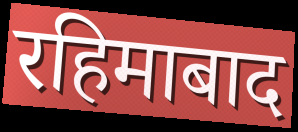
रहिमाबाद